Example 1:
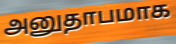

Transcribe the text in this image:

அனுதாபமாக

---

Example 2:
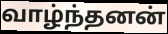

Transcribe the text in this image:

வாழ்ந்தனன்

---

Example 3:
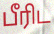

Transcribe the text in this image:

பீரிட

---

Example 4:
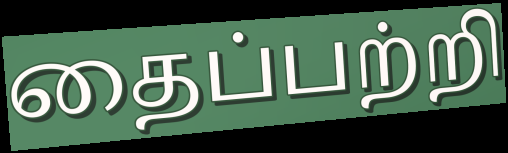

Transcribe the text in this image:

தைப்பற்றி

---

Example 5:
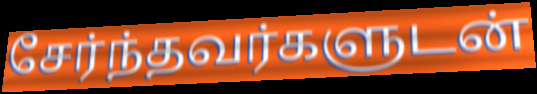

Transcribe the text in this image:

சேர்ந்தவர்களுடன்